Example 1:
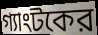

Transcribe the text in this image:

গ্যাংটকের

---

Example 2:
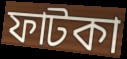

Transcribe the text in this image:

ফাটকা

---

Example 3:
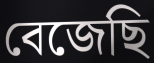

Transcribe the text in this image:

বেজেছি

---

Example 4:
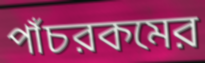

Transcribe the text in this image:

পাঁচরকমের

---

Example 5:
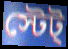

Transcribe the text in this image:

স্টেট্